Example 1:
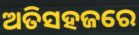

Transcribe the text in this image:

ଅତିସହଜରେ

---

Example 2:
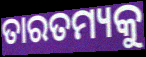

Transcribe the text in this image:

ତାରତମ୍ୟକୁ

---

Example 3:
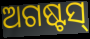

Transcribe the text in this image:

ଅଗଷ୍ଟସ୍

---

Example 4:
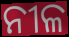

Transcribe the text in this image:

ନୀଳ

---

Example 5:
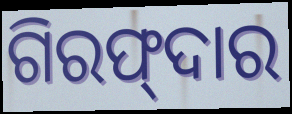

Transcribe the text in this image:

ଗିରଫ୍‍ଦାର